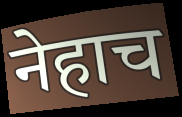
नेहाच